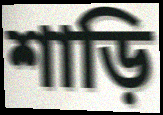
শাড়ি